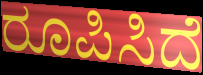
ರೂಪಿಸಿದೆ